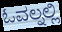
ಓವಲ್ನಲ್ಲಿ